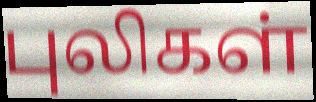
புலிகள்